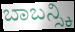
ಬಾಬನ್ಸ್ಕಿ